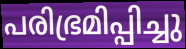
പരിഭ്രമിപ്പിച്ചു